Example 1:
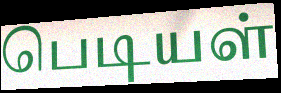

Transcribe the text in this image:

பெடியள்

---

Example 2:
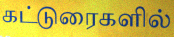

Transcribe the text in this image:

கட்டுரைகளில்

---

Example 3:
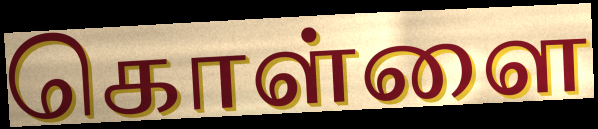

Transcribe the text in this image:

கொள்ளை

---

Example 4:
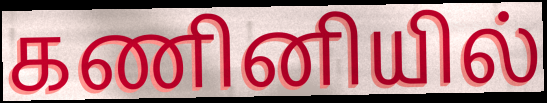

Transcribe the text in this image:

கணினியில்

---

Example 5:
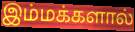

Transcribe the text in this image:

இம்மக்களால்